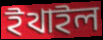
ইথাইল